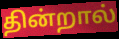
தின்றால்